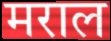
मराल